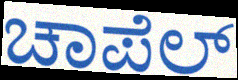
ಚಾಪೆಲ್